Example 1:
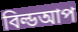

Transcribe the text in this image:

বিল্ডআপ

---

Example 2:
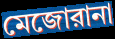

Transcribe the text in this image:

মেজোরানা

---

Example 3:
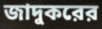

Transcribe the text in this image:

জাদুকরের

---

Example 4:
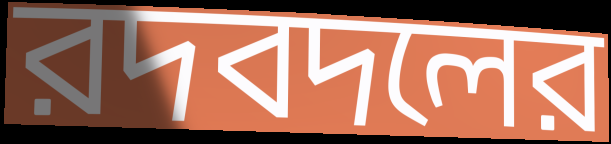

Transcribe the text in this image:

রদবদলের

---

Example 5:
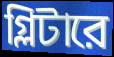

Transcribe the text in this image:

গ্লিটারে